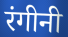
रंगीनी